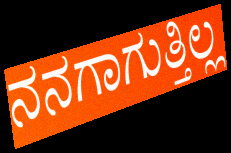
ನನಗಾಗುತ್ತಿಲ್ಲ